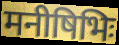
मनीषिभिः